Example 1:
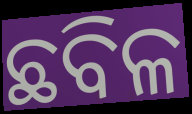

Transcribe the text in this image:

ଛବିଳ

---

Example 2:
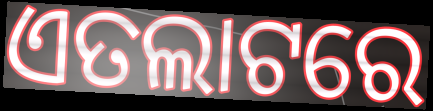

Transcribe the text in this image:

ଏତଲାଟରେ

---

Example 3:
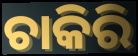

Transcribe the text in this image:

ଚାକିରି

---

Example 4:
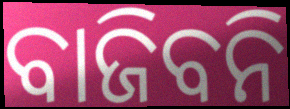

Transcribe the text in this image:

ବାଜିବନି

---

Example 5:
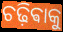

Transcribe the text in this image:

ଚଢ଼ିଵାକୁ